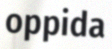
oppida